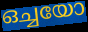
ഒച്ചയോ